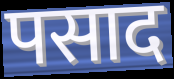
पसाद